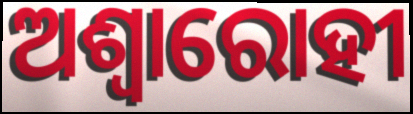
ଅଶ୍ଵାରୋହୀ